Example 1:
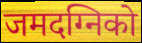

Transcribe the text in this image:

जमदग्निको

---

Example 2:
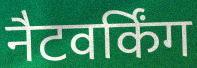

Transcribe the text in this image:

नैटवर्किंग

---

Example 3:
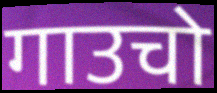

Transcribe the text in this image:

गाउचो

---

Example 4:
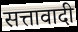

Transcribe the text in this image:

सत्तावादी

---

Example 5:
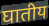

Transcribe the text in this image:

घातीय